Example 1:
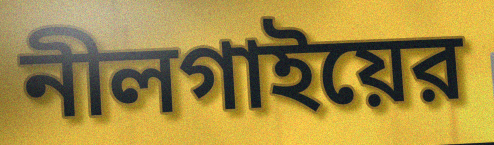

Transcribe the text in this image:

নীলগাইয়ের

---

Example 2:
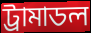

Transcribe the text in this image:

ট্রামাডল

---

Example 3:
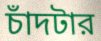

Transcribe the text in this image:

চাঁদটার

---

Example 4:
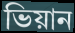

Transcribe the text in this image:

ভিয়ান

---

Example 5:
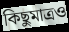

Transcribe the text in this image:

কিছুমাত্রও